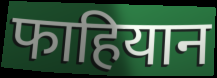
फाहियान